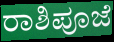
ರಾಶಿಪೂಜೆ